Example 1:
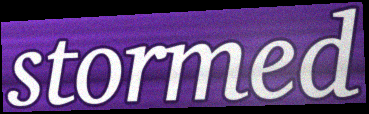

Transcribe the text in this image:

stormed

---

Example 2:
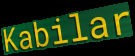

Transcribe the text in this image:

Kabilar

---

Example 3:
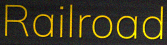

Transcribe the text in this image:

Railroad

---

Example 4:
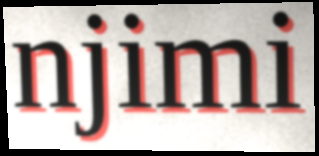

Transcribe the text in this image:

njimi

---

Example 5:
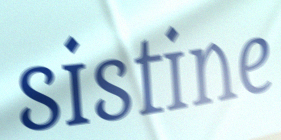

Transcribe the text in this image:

sistine